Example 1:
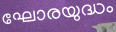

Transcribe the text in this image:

ഘോരയുദ്ധം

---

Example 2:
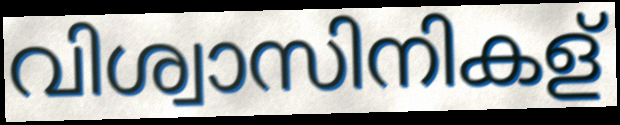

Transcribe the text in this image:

വിശ്വാസിനികള്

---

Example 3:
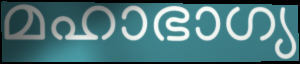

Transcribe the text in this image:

മഹാഭാഗ്യ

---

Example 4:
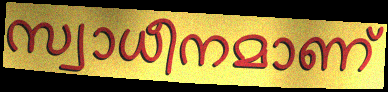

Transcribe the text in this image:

സ്വാധീനമാണ്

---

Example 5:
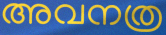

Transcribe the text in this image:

അവനത്ര